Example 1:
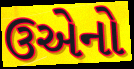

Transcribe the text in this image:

ઉએનો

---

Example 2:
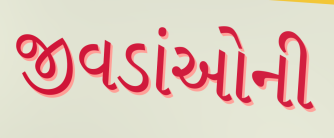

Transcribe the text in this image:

જીવડાંઓની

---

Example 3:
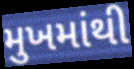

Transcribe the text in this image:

મુખમાંથી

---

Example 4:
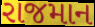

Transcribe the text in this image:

રાજમાન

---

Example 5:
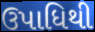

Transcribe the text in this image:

ઉપાધિથી